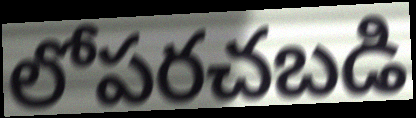
లోపరచబడి